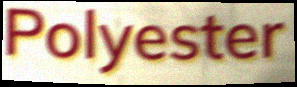
Polyester